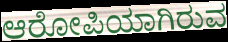
ಆರೋಪಿಯಾಗಿರುವ